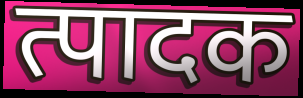
त्पादक